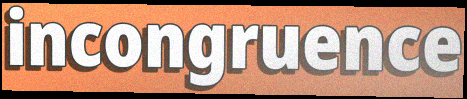
incongruence